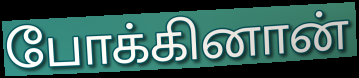
போக்கினான்